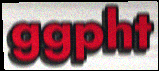
ggpht